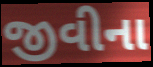
જીવીના